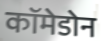
कॉमेडोन